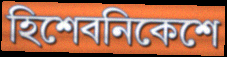
হিশেবনিকেশে